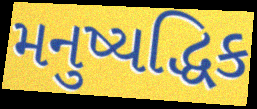
મનુષ્યદ્ધિક